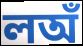
লঅঁ